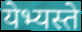
येभ्यस्ते